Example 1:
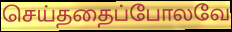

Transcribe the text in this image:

செய்ததைப்போலவே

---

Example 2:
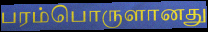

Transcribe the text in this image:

பரம்பொருளானது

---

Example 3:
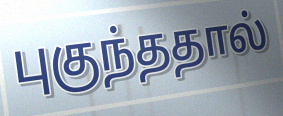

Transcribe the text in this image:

புகுந்ததால்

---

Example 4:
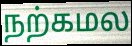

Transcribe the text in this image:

நற்கமல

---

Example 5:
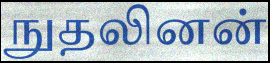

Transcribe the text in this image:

நுதலினன்